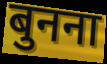
बुनना